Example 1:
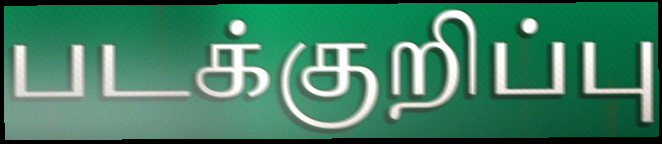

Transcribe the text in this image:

படக்குறிப்பு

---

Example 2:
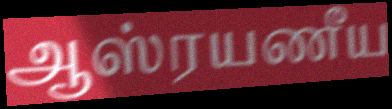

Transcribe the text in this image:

ஆஸ்ரயணீய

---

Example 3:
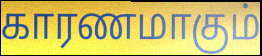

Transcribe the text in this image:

காரணமாகும்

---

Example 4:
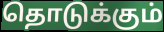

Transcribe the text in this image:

தொடுக்கும்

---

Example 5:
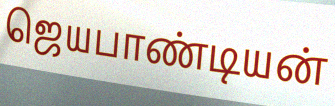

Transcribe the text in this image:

ஜெயபாண்டியன்